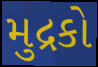
મુદ્રકો